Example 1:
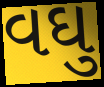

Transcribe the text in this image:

વઘુ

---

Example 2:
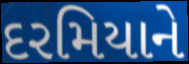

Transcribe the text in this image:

દરમિયાને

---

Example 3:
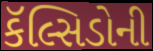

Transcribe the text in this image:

કૅલ્સિડોની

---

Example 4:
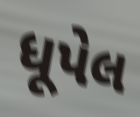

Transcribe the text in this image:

ધૂપેલ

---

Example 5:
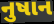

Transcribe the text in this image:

નુષાન